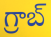
గ్రాబ్